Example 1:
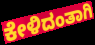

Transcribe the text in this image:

ಕೇಳಿದಂತಾಗಿ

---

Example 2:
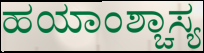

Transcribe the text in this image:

ಹಯಾಂಶ್ಚಾಸ್ಯ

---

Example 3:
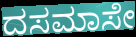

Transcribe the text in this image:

ದಸಮಾಸೇ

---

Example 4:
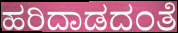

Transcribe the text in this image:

ಹರಿದಾಡದಂತೆ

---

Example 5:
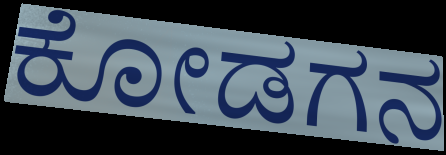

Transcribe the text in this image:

ಕೋಡಗನ